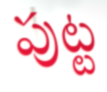
పుట్ట